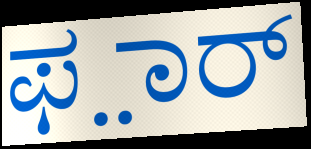
ಫ಼ಾರ್